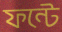
ফন্টে